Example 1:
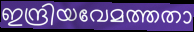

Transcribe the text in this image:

ഇന്ദ്രിയവേമത്തതാ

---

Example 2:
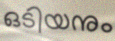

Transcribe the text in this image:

ഒടിയനും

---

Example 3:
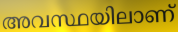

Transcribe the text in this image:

അവസ്ഥയിലാണ്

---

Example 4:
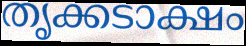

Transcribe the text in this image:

തൃക്കടാക്ഷം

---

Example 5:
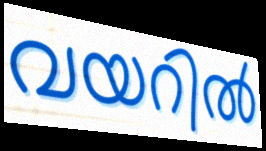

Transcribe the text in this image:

വയറിൽ